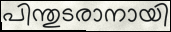
പിന്തുടരാനായി